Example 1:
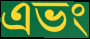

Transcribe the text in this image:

এভং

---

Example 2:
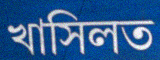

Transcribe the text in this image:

খাসিলত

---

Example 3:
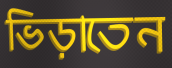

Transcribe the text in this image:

ভিড়াতেন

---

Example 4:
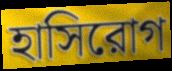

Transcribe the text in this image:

হাসিরোগ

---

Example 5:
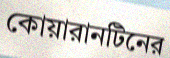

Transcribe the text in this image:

কোয়ারানটিনের